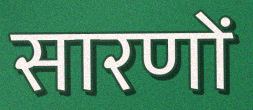
सारणों